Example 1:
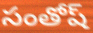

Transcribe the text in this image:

సంతోష్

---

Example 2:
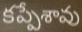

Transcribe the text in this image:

కప్పేశావు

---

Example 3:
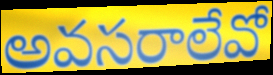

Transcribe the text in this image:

అవసరాలేవో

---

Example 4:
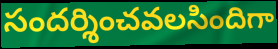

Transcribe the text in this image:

సందర్శించవలసిందిగా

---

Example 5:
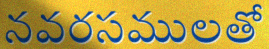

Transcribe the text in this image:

నవరసములతో